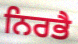
ਨਿਰਭੈ